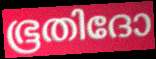
ഭൂതിദോ